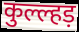
कुल्ल्हड़